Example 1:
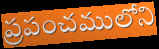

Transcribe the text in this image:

ప్రపంచములోని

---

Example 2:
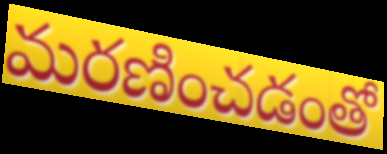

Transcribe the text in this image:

మరణించడంతో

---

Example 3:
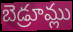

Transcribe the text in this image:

బెడ్రూమ్లు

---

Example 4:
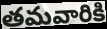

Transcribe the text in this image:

తమవారికి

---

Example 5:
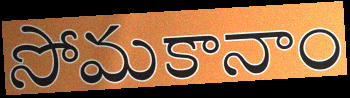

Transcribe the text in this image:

సోమకానాం